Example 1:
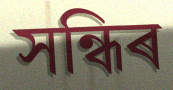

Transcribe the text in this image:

সন্ধিৰ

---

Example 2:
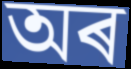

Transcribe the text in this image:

অৰ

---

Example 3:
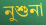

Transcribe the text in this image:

নুশুনা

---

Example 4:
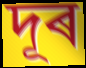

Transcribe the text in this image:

দূৰ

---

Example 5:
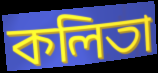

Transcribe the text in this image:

কলিতা